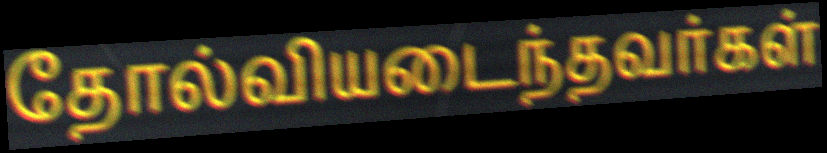
தோல்வியடைந்தவர்கள்